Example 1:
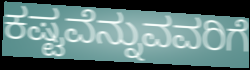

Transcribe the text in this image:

ಕಷ್ಟವೆನ್ನುವವರಿಗೆ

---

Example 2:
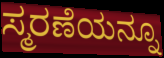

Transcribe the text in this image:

ಸ್ಮರಣೆಯನ್ನೂ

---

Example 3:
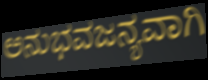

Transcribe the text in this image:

ಅನುಭವಜನ್ಯವಾಗಿ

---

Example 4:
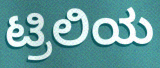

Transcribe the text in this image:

ಟ್ರಿಲಿಯ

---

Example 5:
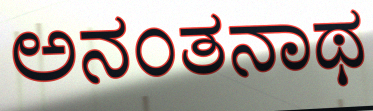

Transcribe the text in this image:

ಅನಂತನಾಥ